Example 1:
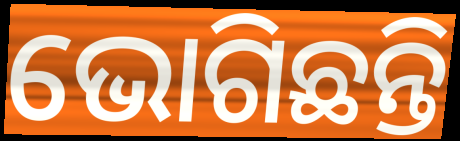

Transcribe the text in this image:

ଭୋଗିଛନ୍ତି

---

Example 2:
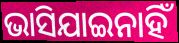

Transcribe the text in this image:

ଭାସିଯାଇନାହିଁ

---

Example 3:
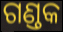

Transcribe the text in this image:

ଗଣ୍ଡକ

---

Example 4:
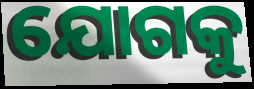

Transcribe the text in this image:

ଯୋଗକୁ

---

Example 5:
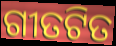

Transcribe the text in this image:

ଗୀତଟିତ